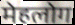
मेहलोग